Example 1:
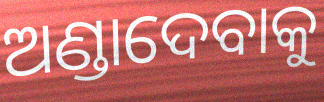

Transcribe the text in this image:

ଅଣ୍ଡାଦେବାକୁ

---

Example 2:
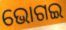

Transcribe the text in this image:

ଭୋଗଇ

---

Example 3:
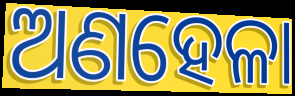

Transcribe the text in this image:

ଅଣହେଳା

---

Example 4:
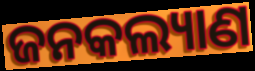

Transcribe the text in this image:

ଜନକଲ୍ୟାଣ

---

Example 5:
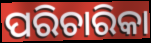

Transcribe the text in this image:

ପରିଚାରିକା